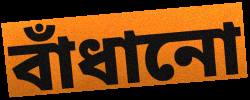
বাঁধানো